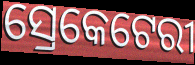
ସ୍ରେକେଟେରୀ